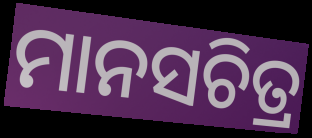
ମାନସଚିତ୍ର